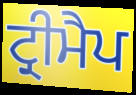
ਟ੍ਰੀਮੈਪ